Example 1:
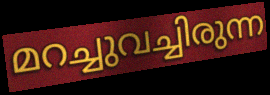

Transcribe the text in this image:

മറച്ചുവച്ചിരുന്ന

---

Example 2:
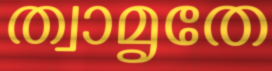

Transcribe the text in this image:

ത്വാമൃതേ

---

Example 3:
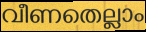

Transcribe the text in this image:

വീണതെല്ലാം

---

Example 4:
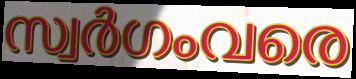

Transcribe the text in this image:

സ്വർഗംവരെ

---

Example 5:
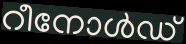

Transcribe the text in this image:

റീനോൾഡ്